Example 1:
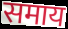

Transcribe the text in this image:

समाय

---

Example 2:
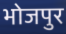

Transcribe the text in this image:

भोजपुर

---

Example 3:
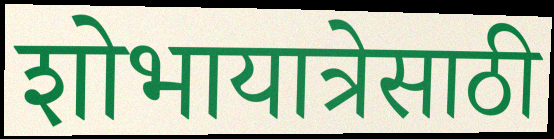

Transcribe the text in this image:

शोभायात्रेसाठी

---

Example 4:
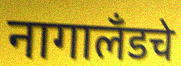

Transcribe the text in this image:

नागालँडचे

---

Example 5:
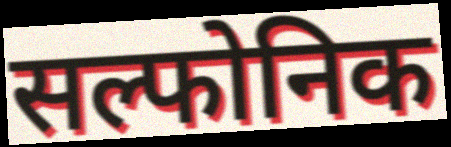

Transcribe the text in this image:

सल्फोनिक